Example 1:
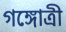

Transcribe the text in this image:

গঙ্গোত্রী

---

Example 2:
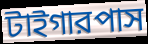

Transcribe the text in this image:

টাইগারপাস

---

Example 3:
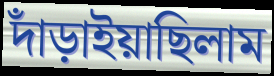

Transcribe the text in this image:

দাঁড়াইয়াছিলাম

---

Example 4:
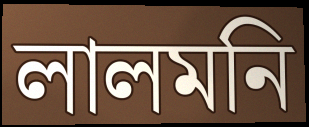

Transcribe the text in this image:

লালমনি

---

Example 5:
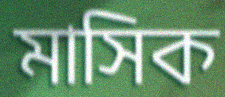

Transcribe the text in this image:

মাসিক